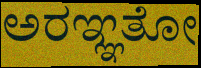
ಅರಞ್ಞತೋ